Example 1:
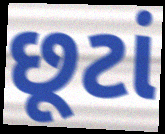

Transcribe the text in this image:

છૂટાં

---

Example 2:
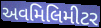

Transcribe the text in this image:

અવમિલિમીટર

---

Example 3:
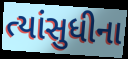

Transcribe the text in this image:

ત્યાંસુધીના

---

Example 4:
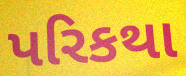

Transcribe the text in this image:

પરિકથા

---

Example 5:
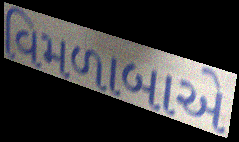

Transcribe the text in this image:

વિમળાબાએ